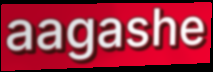
aagashe